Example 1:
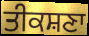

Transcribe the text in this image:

ਤੀਕਸ਼ਣਾ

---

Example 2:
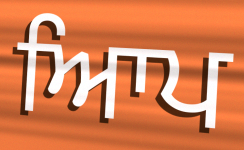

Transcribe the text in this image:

ਆਿਪ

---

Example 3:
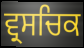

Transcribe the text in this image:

ਵ੍ਰਸਚਿਕ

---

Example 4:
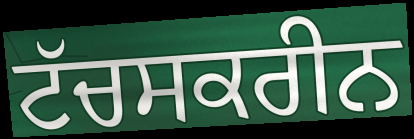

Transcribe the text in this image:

ਟੱਚਸਕਰੀਨ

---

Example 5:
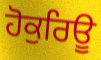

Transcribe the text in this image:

ਹੋਕੁਰਿਊ